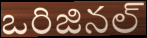
ఒరిజినల్